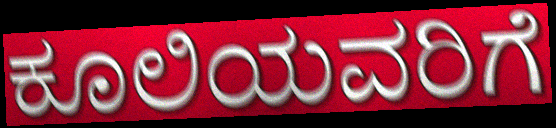
ಕೂಲಿಯವರಿಗೆ